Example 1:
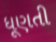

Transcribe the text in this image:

ધૂણતી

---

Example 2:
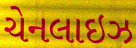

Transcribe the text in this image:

ચેનલાઇઝ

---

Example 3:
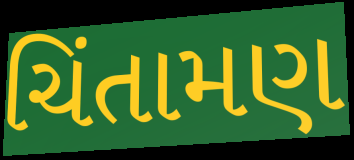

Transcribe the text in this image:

ચિંતામણ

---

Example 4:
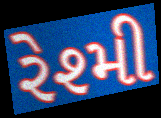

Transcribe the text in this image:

રેશ્મી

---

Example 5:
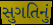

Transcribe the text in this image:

સુગતિનું